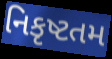
નિકૃષ્ટતમ